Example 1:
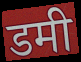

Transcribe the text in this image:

डमी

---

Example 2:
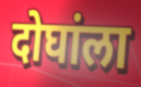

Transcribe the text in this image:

दोघांला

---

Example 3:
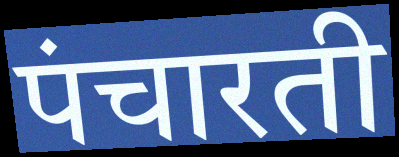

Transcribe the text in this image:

पंचारती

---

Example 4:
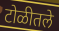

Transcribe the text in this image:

टोळीतले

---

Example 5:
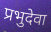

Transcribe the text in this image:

प्रभुदेवा